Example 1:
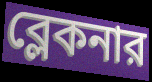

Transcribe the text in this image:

ব্লেকনার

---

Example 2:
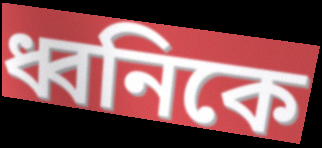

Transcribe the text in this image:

ধ্বনিকে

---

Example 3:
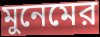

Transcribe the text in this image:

মুনেমের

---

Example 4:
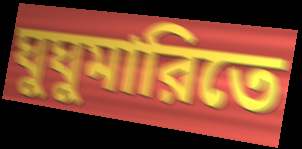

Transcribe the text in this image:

ঘুঘুমারিতে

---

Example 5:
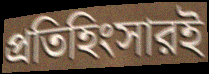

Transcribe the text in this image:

প্রতিহিংসারই